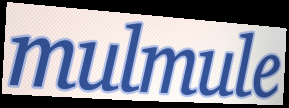
mulmule